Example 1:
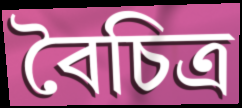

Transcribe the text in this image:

বৈচিত্র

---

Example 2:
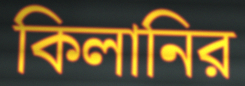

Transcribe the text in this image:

কিলানির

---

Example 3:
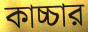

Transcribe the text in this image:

কাচ্চার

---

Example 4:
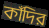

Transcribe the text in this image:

কাঁদির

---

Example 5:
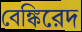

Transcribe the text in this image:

বেঙ্কিরেদ